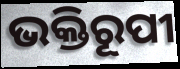
ଭକ୍ତିରୂପୀ